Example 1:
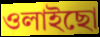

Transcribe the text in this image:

ওলাইছো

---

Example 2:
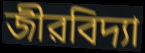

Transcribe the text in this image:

জীৱবিদ্যা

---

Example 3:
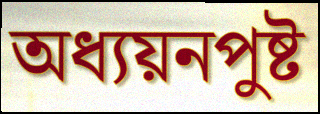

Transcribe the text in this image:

অধ্যয়নপুষ্ট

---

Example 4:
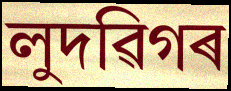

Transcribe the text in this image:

লুদৱিগৰ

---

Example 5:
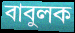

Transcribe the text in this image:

বাবুলক